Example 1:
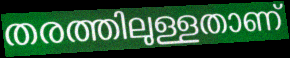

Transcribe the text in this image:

തരത്തിലുള്ളതാണ്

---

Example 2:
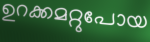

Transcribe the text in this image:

ഉറക്കമറ്റുപോയ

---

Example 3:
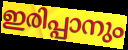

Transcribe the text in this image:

ഇരിപ്പാനും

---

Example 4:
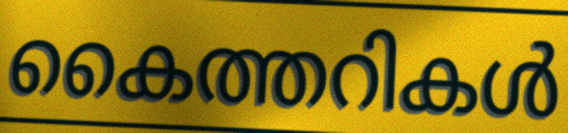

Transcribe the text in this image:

കൈത്തറികൾ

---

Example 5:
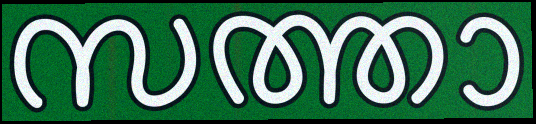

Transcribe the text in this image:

സത്താ